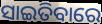
ସାଇତିବାରେ